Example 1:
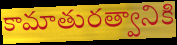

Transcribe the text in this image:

కామాతురత్వానికి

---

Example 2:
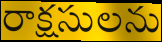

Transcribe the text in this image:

రాక్షసులను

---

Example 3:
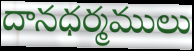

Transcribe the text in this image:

దానధర్మములు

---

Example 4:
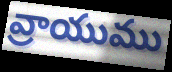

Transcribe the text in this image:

వ్రాయుము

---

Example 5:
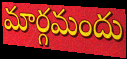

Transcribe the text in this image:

మార్గమందు